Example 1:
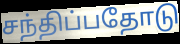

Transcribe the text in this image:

சந்திப்பதோடு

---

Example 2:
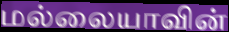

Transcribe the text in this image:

மல்லையாவின்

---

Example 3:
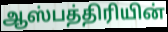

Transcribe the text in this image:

ஆஸ்பத்திரியின்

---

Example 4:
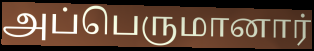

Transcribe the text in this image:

அப்பெருமானார்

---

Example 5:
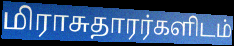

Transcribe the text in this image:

மிராசுதாரர்களிடம்